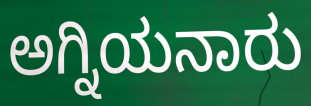
ಅಗ್ನಿಯನಾರು